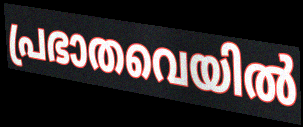
പ്രഭാതവെയിൽ